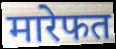
मारेफत